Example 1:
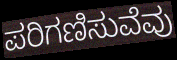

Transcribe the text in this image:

ಪರಿಗಣಿಸುವೆವು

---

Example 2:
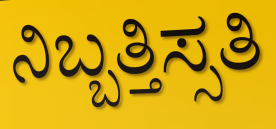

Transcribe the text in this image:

ನಿಬ್ಬತ್ತಿಸ್ಸತಿ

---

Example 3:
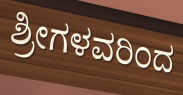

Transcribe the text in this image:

ಶ್ರೀಗಳವರಿಂದ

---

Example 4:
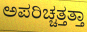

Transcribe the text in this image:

ಅಪರಿಚ್ಚತ್ತತ್ತಾ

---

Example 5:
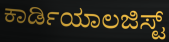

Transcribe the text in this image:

ಕಾರ್ಡಿಯಾಲಜಿಸ್ಟ್